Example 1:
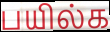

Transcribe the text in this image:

பயில்க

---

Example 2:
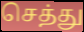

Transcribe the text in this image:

செத்து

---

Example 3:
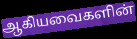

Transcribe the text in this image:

ஆகியவைகளின்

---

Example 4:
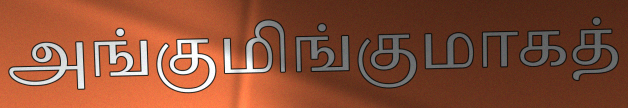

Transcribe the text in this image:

அங்குமிங்குமாகத்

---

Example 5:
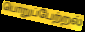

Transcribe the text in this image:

பொறுப்பேற்றல்